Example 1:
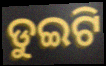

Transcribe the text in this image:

ଡୁଇଟି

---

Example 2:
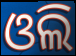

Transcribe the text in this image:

ଓଲି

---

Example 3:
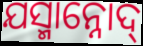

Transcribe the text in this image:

ଯସ୍ମାନ୍ନୋଦ୍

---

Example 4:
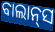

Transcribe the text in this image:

ବାଲାନ୍‌ସ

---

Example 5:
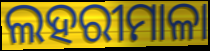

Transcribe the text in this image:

ଲହରୀମାଳା